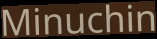
Minuchin